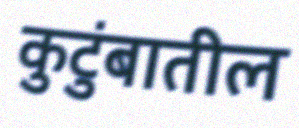
कुटुंबातील